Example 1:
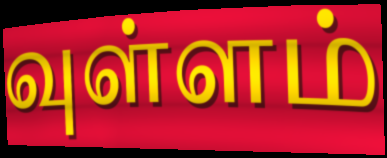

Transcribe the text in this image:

வுள்ளம்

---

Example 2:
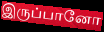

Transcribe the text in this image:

இருப்பானோ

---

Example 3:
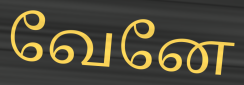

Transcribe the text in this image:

வேனே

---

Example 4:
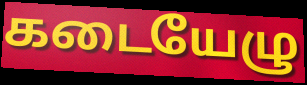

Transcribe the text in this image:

கடையேழு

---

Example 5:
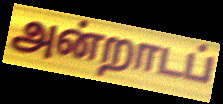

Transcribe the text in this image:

அன்றாடப்